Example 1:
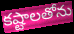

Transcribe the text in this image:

కష్టాలతోను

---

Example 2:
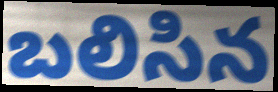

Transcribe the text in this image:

బలిసిన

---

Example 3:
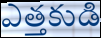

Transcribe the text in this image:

ఎత్తకుడి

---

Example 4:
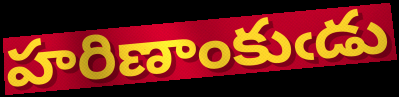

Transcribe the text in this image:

హరిణాంకుఁడు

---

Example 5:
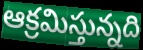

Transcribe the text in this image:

ఆక్రమిస్తున్నది